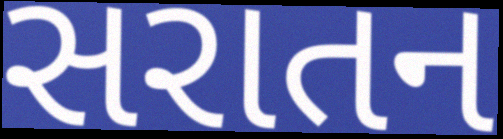
સરાતન